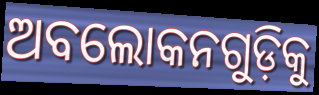
ଅବଲୋକନଗୁଡ଼ିକୁ